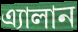
এ্যালান